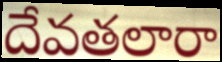
దేవతలారా